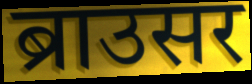
ब्राउसर